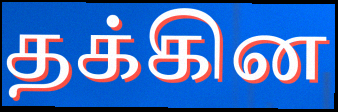
தக்கின